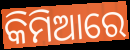
କିମିଆରେ